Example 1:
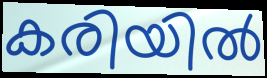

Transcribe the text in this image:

കരിയിൽ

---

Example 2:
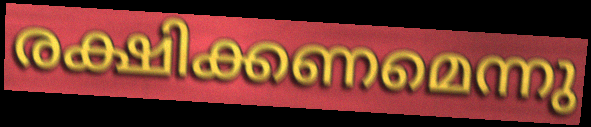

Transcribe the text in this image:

രക്ഷിക്കണമെന്നു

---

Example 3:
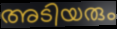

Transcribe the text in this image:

അടിയരും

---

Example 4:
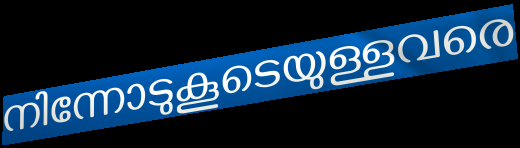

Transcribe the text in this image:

നിന്നോടുകൂടെയുള്ളവരെ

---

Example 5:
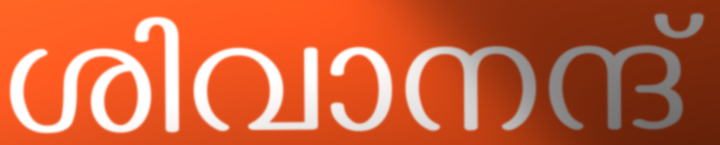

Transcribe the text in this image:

ശിവാനന്ദ്